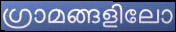
ഗ്രാമങ്ങളിലോ